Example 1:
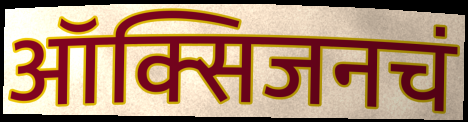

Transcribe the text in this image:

ऑक्सिजनचं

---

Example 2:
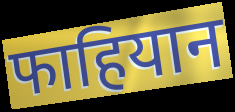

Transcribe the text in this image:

फाहियान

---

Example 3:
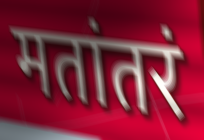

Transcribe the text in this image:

मतांतरं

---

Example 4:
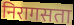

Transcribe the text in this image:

निरागसता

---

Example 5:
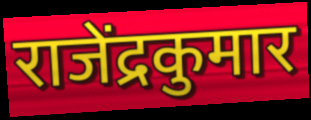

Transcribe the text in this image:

राजेंद्रकुमार